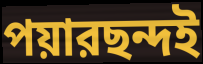
পয়ারছন্দই